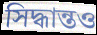
সিদ্ধান্তও